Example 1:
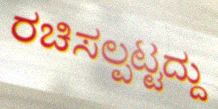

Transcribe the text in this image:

ರಚಿಸಲ್ಪಟ್ಟದ್ದು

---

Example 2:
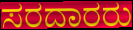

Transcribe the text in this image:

ಸರದಾರರು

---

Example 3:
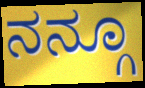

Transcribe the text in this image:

ನನ್ಗೂ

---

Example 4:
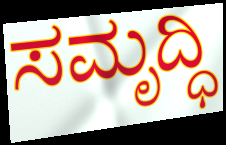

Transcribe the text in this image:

ಸಮೃದ್ಧಿ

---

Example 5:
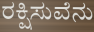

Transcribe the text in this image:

ರಕ್ಷಿಸುವೆನು